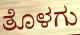
ತೊಳಗು